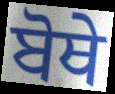
ਬੋਥੇ